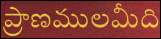
ప్రాణములమీది